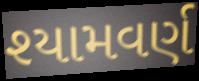
શ્યામવર્ણ